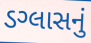
ડગ્લાસનું